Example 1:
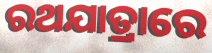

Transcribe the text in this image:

ରଥଯାତ୍ରାରେ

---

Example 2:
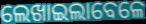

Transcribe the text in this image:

ଲେଖାଇଲାବେଳେ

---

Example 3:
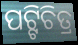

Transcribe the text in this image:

ପଟ୍ଟିଚିତ୍ର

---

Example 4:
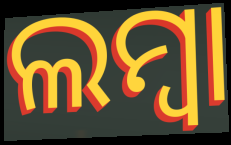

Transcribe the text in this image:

ଲମ୍ବା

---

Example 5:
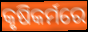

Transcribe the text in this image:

କୃଷିକର୍ମରେ